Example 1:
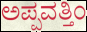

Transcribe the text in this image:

ಅಪ್ಪವತ್ತಿಂ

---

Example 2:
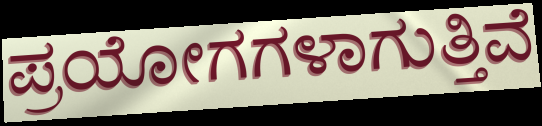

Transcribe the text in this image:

ಪ್ರಯೋಗಗಳಾಗುತ್ತಿವೆ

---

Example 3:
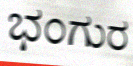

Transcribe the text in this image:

ಭಂಗುರ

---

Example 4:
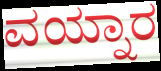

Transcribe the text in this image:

ವಯ್ನಾರ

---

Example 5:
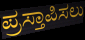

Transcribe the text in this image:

ಪ್ರಸ್ತಾಪಿಸಲು